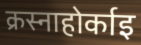
क्रस्नाहोर्काइ